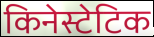
किनेस्टेटिक